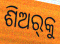
ଶିଅର୍‌କୁ